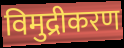
विमुद्रीकरण